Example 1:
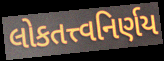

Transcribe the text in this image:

લોકતત્ત્વનિર્ણય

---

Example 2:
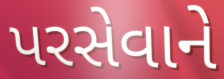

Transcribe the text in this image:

પરસેવાને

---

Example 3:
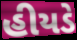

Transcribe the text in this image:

હીયડે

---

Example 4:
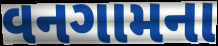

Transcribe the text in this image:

વનગામના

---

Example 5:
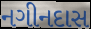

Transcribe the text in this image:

નગીનદાસ